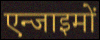
एन्जाइमों